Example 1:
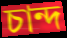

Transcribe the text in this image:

চান্দ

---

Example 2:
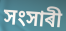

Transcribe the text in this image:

সংসাৰী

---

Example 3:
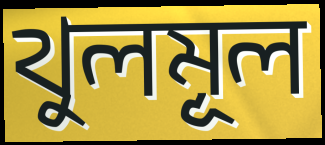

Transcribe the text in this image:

থুলমূল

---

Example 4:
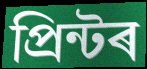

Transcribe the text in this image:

প্ৰিন্টৰ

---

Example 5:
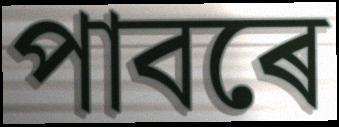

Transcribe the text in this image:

পাবৰে